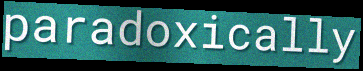
paradoxically